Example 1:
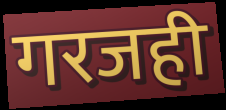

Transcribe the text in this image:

गरजही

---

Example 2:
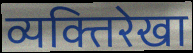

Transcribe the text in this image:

व्यक्तिरेखा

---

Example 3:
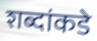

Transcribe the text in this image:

शब्दांकडे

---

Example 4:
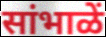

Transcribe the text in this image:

सांभाळें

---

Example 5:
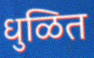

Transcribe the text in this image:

धुळित